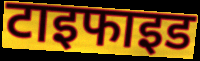
टाइफाइड